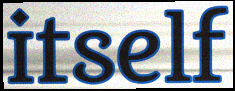
itself